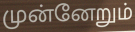
முன்னேறும்